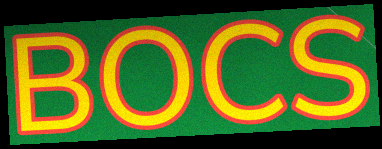
BOCS